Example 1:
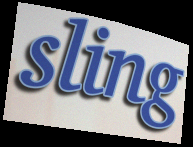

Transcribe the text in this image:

sling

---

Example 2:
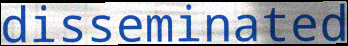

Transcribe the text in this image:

disseminated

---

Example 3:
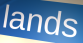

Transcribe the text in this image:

lands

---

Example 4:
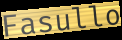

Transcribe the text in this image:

Fasullo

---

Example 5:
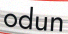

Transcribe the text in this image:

odun